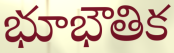
భూభౌతిక